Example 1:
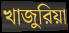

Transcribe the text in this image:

খাজুরিয়া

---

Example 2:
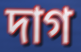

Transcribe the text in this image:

দাগ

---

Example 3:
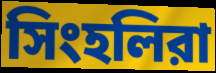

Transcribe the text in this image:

সিংহলিরা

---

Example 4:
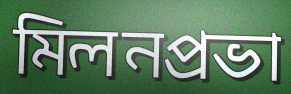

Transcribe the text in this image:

মিলনপ্রভা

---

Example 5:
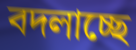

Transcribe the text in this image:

বদলাচ্ছে